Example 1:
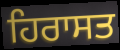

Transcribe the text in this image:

ਹਿਰਾਸਤ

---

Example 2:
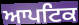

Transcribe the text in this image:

ਆਪਟਿਕ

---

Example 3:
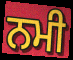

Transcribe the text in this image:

ਨਮੀ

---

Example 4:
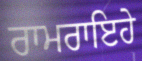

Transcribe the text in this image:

ਰਾਮਰਾਇਹੇ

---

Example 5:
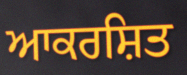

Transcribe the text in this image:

ਆਕਰਸ਼ਿਤ